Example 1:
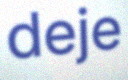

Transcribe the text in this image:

deje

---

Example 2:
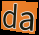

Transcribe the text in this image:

da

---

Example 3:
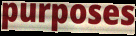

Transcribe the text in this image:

purposes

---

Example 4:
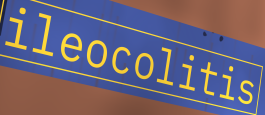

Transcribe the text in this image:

ileocolitis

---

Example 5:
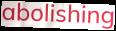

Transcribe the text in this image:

abolishing